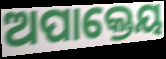
ଅପାକ୍ତେୟ